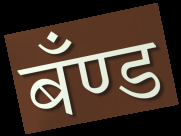
बँण्ड